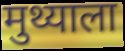
मुथ्याला